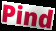
Pind